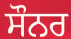
ਸੌਨਰ